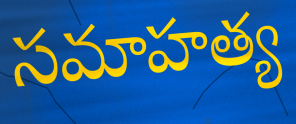
సమాహత్య